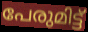
പേരുമിട്ട്